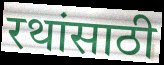
रथांसाठी